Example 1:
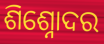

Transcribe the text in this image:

ଶିଶ୍ନୋଦର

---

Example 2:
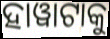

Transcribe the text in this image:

ହାୱାଟାକୁ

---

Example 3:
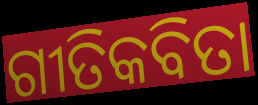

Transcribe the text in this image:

ଗୀତିକବିତା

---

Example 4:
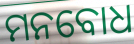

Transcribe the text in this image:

ମନବୋଧ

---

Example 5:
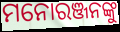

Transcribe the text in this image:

ମନୋରଞ୍ଜନଙ୍କୁ